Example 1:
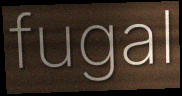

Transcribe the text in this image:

fugal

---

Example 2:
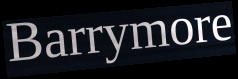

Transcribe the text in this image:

Barrymore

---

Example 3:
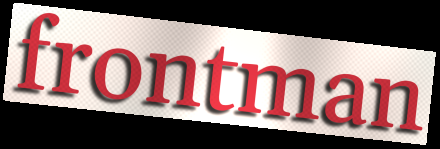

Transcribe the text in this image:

frontman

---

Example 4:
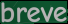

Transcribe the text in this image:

breve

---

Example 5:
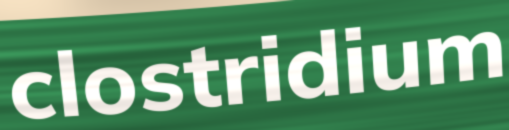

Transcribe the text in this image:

clostridium